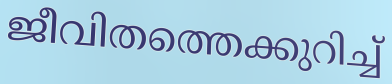
ജീവിതത്തെക്കുറിച്ച്